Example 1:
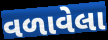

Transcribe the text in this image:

વળાવેલા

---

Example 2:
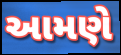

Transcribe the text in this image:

આમણે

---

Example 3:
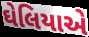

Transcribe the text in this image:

ઘેલિયાએ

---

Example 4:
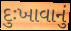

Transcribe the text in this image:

દુઃખાવાનું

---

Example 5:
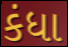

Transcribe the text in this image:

કંધા